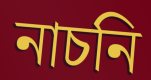
নাচনি